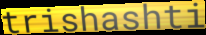
trishashti